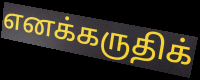
எனக்கருதிக்